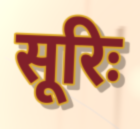
सूरिः